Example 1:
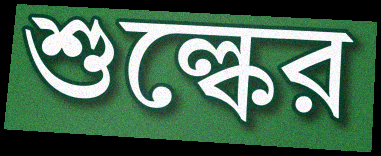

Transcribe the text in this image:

শুল্কের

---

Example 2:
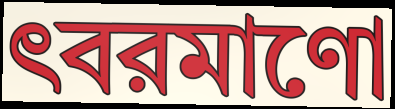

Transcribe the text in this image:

ৎবরমাণো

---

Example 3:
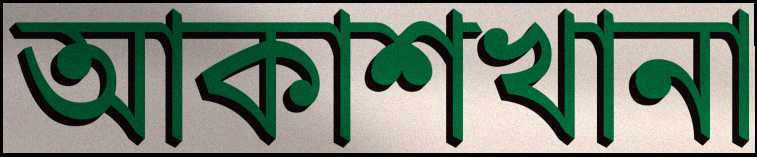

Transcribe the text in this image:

আকাশখানা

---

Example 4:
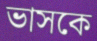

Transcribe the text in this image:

ভাসকে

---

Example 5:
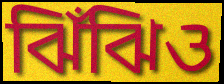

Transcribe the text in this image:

ঝিঁঝিও